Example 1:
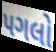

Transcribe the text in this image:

પગલો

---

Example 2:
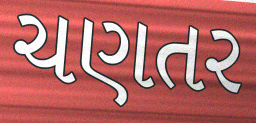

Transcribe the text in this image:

ચણતર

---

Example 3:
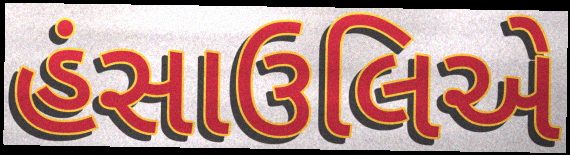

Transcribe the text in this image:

હંસાઉલિએ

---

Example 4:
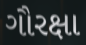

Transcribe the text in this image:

ગૌરક્ષા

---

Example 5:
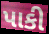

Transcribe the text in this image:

પાકી